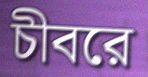
চীবরে